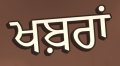
ਖਬ਼ਰਾਂ